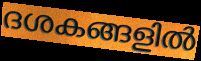
ദശകങ്ങളിൽ